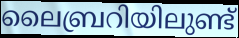
ലൈബ്രറിയിലുണ്ട്